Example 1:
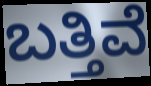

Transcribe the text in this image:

ಬತ್ತಿವೆ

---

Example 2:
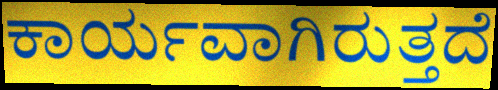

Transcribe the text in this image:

ಕಾರ್ಯವಾಗಿರುತ್ತದೆ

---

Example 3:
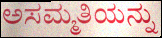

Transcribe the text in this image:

ಅಸಮ್ಮತಿಯನ್ನು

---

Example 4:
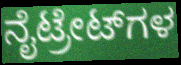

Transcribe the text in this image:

ನೈಟ್ರೇಟ್‌ಗಳ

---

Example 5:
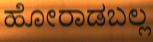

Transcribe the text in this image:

ಹೋರಾಡಬಲ್ಲ